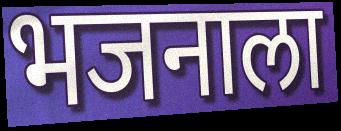
भजनाला